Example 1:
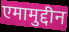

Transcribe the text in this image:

एमामुद्दीन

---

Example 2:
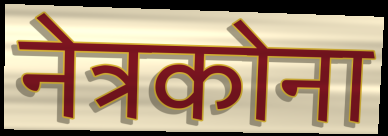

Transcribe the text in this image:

नेत्रकोना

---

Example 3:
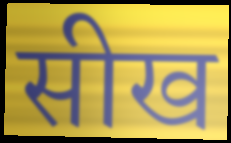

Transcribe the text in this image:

सीख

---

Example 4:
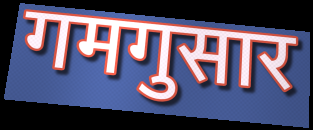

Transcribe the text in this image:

गमगुसार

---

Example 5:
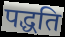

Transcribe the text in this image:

पद्धति